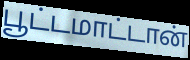
பூட்டமாட்டான்